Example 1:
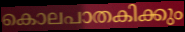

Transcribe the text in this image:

കൊലപാതകിക്കും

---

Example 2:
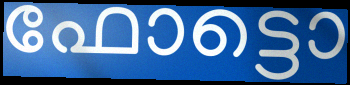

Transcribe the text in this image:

ഫോട്ടൊ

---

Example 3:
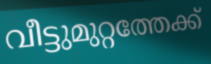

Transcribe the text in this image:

വീട്ടുമുറ്റത്തേക്ക്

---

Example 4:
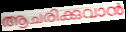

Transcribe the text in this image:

ആചരിക്കുവാൻ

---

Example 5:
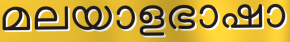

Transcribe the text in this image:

മലയാളഭാഷാ